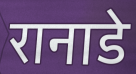
रानाडे